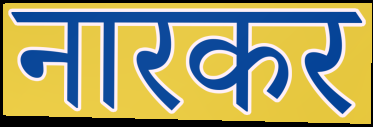
नारकर